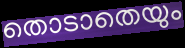
തൊടാതെയും